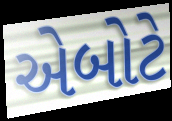
એબોટે